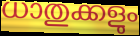
ധാതുക്കളും